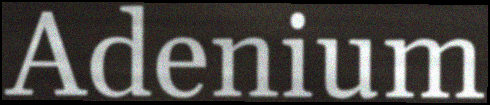
Adenium